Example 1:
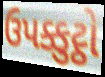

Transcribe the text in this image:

ઉપક્કુટ્ઠો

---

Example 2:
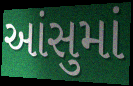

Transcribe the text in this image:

આંસુમાં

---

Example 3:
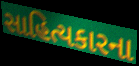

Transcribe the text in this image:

સાહિત્યકારના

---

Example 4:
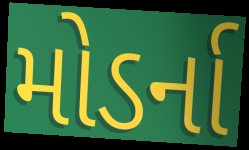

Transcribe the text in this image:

મોડર્ના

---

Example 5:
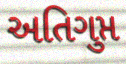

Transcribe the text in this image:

અતિગુપ્ત